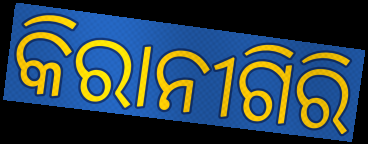
କିରାନୀଗିରି